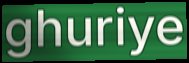
ghuriye